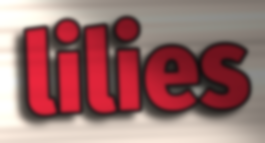
lilies